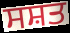
ਸਸ਼ਤ